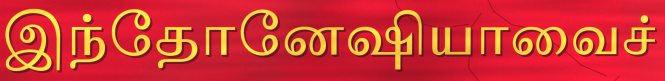
இந்தோனேஷியாவைச்